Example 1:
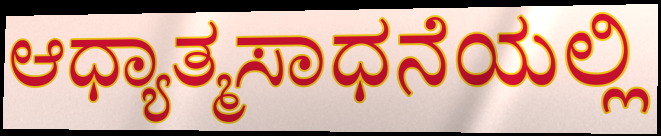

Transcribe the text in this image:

ಆಧ್ಯಾತ್ಮಸಾಧನೆಯಲ್ಲಿ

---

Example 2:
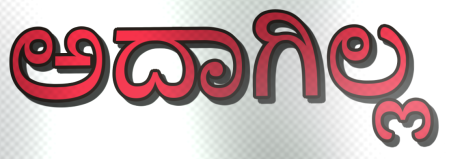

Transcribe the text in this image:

ಅದಾಗಿಲ್ಲ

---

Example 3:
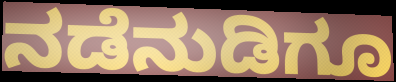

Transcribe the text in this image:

ನಡೆನುಡಿಗೂ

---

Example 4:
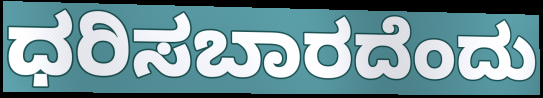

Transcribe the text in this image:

ಧರಿಸಬಾರದೆಂದು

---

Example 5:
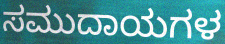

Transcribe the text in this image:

ಸಮುದಾಯಗಳ